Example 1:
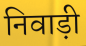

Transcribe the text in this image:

निवाड़ी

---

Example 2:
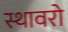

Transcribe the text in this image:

स्थावरो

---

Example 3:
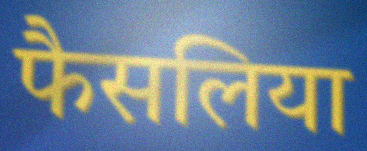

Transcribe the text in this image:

फैसलिया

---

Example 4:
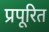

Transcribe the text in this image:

प्रपूरित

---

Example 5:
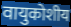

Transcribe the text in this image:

वायुकोशीय